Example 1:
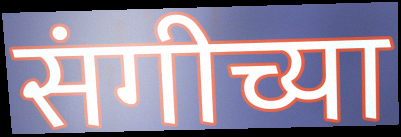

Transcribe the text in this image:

संगीच्या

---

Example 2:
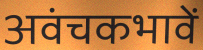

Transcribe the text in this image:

अवंचकभावें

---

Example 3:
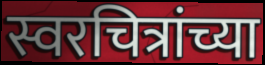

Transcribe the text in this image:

स्वरचित्रांच्या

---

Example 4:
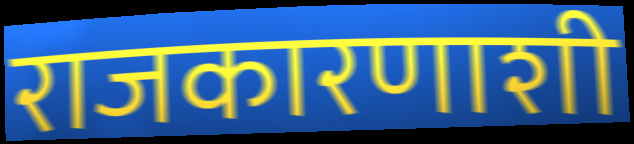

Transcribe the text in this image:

राजकारणाशी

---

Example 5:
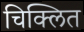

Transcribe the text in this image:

चिक्लित